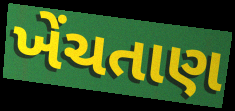
ખેંચતાણ